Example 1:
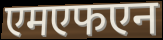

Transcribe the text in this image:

एमएफएन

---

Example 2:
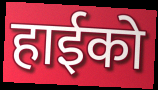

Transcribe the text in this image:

हाईको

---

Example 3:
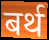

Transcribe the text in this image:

बर्थ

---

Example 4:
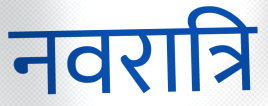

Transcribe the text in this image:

नवरात्रि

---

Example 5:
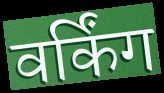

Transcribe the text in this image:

वर्किंग